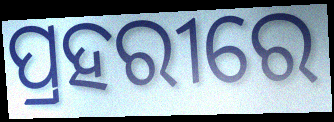
ପ୍ରହରୀରେ